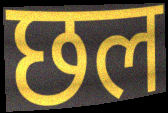
छल